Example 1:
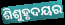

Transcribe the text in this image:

ଶିଶୁହୃଦୟର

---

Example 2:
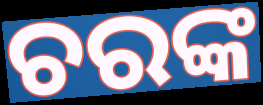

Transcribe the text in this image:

ଚରଙ୍କ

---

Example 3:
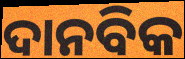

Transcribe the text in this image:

ଦାନବିକ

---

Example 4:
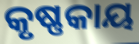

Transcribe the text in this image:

କୃଷ୍ଣକାୟ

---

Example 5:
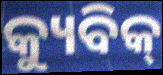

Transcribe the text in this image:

କ୍ୟୁବିକ୍